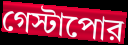
গেস্টাপোর